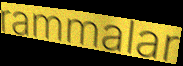
rammalar